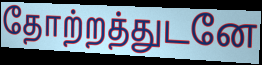
தோற்றத்துடனே